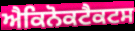
ਐਕਿਨੋਕਟੈਕਟਸ